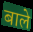
बाले